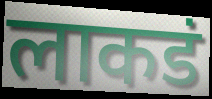
लाकडं